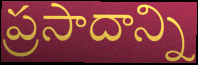
ప్రసాదాన్ని